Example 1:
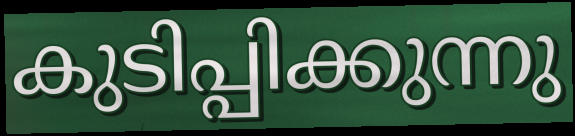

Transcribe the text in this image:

കുടിപ്പിക്കുന്നു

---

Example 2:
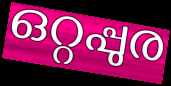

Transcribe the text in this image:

ഒറ്റപ്പുര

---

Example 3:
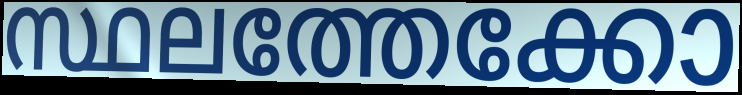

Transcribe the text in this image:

സ്ഥലത്തേക്കോ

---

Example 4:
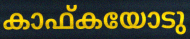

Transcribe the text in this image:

കാഫ്കയോടു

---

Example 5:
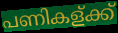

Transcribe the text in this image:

പണികള്ക്ക്